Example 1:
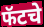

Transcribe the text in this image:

फॅटचे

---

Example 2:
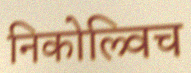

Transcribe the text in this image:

निकोल्विच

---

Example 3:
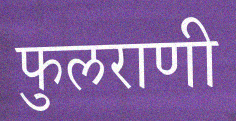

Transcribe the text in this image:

फुलराणी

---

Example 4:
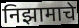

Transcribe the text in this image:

निझामाचे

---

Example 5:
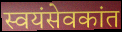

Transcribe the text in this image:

स्वयंसेवकांत